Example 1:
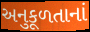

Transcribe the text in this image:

અનુકૂળતાનાં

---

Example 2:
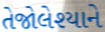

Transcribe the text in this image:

તેજોલેશ્યાને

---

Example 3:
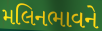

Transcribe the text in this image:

મલિનભાવને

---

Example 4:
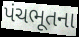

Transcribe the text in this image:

પંચભૂતના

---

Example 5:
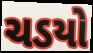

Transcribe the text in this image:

ચડયો